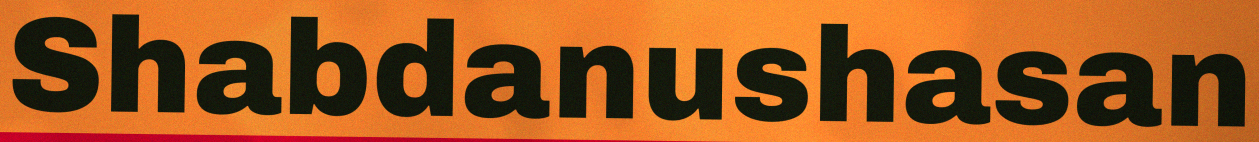
Shabdanushasan